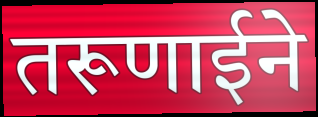
तरूणाईने